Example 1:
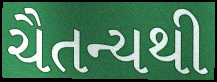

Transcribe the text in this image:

ચૈતન્યથી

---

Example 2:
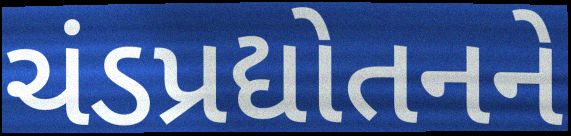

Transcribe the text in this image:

ચંડપ્રદ્યોતનને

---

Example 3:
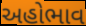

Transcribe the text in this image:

અહોભાવ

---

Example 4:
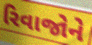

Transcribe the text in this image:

રિવાજોને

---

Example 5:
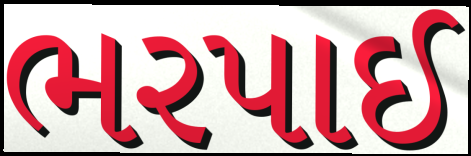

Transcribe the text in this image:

ભરપાઈ